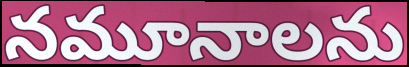
నమూనాలను